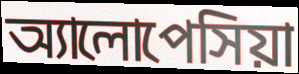
অ্যালোপেসিয়া